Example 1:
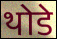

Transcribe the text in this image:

थोडे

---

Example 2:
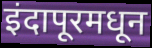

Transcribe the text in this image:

इंदापूरमधून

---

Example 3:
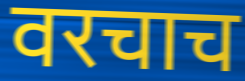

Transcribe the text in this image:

वरचाच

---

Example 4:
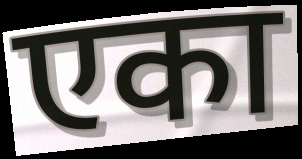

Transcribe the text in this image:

एका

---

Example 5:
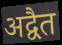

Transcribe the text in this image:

अद्वैत